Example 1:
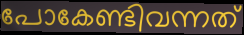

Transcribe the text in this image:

പോകേണ്ടിവന്നത്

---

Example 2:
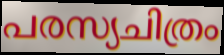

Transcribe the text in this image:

പരസ്യചിത്രം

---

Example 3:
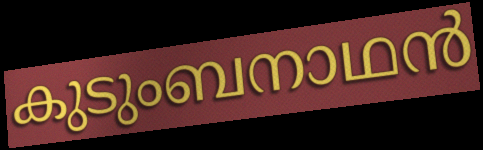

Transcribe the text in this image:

കുടുംബനാഥൻ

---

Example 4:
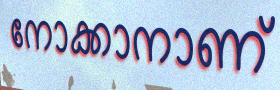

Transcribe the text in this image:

നോക്കാനാണ്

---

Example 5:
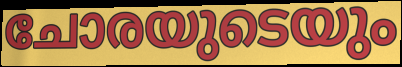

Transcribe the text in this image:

ചോരയുടെയും